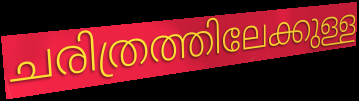
ചരിത്രത്തിലേക്കുള്ള